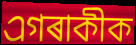
এগৰাকীক